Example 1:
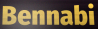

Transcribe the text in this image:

Bennabi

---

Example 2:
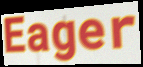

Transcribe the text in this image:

Eager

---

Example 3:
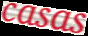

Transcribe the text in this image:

casas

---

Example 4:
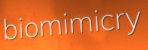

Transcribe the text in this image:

biomimicry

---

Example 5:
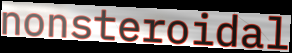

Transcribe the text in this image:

nonsteroidal